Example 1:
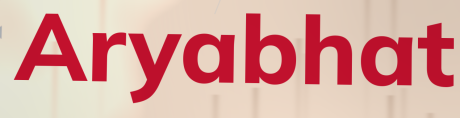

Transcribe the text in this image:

Aryabhat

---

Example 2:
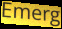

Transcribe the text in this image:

Emerg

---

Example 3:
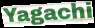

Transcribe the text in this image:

Yagachi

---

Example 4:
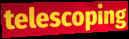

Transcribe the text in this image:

telescoping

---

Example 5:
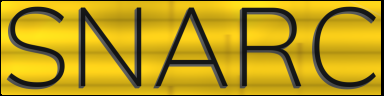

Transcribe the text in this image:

SNARC